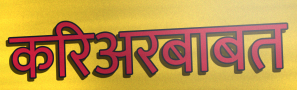
करिअरबाबत